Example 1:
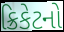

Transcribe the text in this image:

ક્રિકેટનો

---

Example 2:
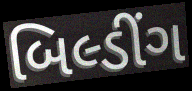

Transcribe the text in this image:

બિલ્ડીંગ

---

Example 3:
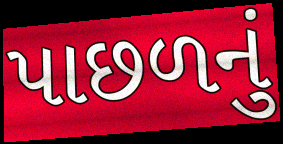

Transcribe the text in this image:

પાછળનું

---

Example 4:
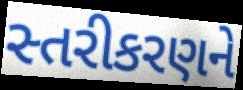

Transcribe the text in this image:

સ્તરીકરણને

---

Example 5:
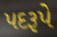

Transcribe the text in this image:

પદરૂપે